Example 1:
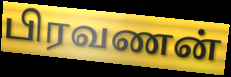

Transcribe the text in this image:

பிரவணன்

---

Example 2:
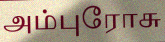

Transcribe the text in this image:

அம்புரோசு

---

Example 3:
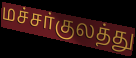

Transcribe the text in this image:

மச்சர்குலத்து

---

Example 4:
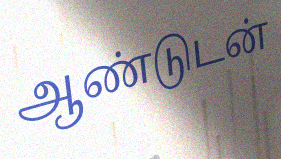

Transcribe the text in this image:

ஆண்டுடன்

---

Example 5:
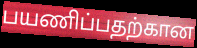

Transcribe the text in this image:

பயணிப்பதற்கான